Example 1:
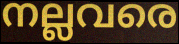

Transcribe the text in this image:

നല്ലവരെ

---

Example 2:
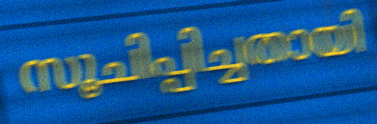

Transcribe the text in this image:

സൂചിപ്പിച്ചതായി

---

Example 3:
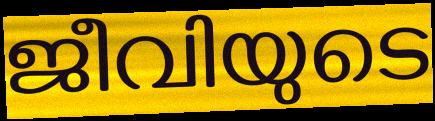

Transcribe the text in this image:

ജീവിയുടെ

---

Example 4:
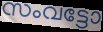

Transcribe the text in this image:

സംവട്ടോ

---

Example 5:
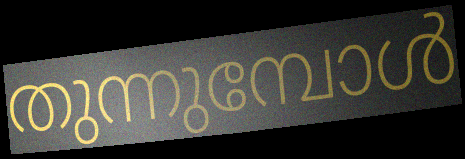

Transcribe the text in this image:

തുന്നുമ്പോൾ